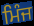
ਮਿੰਜ